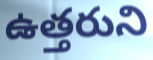
ఉత్తరుని